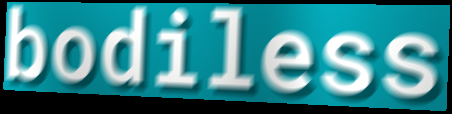
bodiless